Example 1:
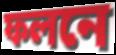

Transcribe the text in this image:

ফলনে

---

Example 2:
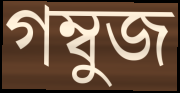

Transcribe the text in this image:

গম্বুজ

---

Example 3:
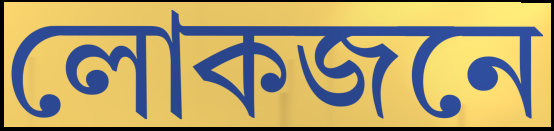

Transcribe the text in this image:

লোকজনে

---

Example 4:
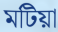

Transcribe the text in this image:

মটিয়া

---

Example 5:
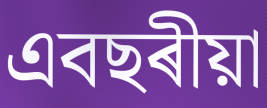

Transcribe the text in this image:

এবছৰীয়া